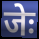
जेः